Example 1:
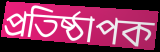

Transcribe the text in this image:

প্ৰতিষ্ঠাপক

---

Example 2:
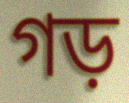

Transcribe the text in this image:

গড়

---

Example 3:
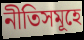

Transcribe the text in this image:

নীতিসমূহে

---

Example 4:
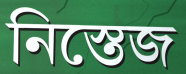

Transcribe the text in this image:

নিস্তেজ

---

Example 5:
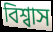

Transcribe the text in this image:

বিশ্বাস